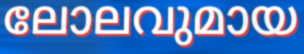
ലോലവുമായ